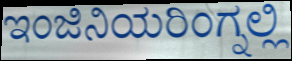
ಇಂಜಿನಿಯರಿಂಗ್ನಲ್ಲಿ